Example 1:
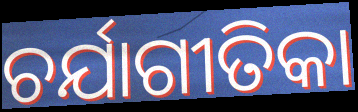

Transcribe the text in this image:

ଚର୍ଯାଗୀତିକା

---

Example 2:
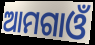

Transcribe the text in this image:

ଆମଗାଓଁ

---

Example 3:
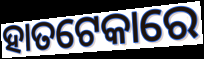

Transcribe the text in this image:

ହାତଟେକାରେ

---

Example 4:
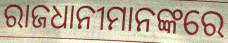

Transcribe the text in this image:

ରାଜଧାନୀମାନଙ୍କରେ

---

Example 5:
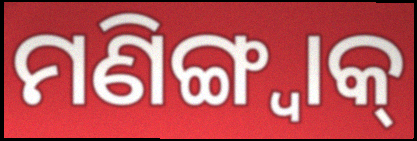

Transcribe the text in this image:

ମଣିଙ୍ଗ୍ୱାକ୍